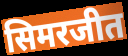
सिमरजीत